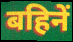
बहिनें